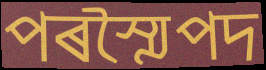
পৰস্মৈপদ